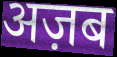
अज़ब